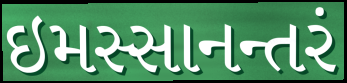
ઇમસ્સાનન્તરં